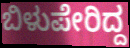
ಬಿಳುಪೇರಿದ್ದ